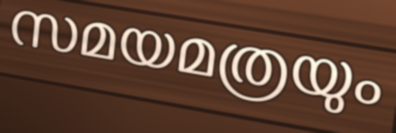
സമയമത്രയും